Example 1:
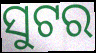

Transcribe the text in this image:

ସୁଟର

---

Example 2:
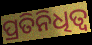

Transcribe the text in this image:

ପ୍ରତିନିଧିତ୍ୱ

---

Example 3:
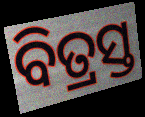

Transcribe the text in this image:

ବିତ୍ରସ୍ତ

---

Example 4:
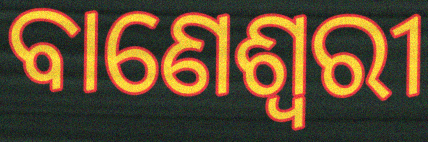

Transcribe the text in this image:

ବାଣେଶ୍ୱରୀ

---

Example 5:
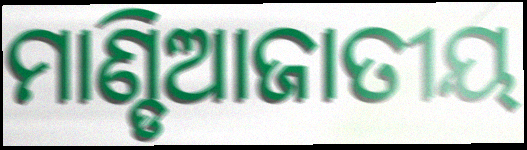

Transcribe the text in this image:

ମାଣ୍ଡିଆଜାତୀୟ